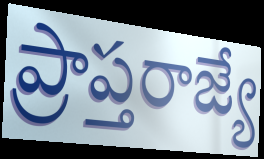
ప్రాప్తరాజ్యే